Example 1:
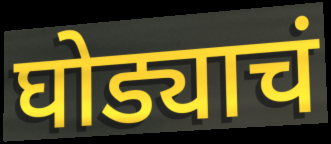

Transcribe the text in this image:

घोड्याचं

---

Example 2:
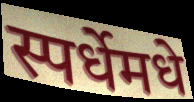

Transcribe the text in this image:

स्पर्धेमधे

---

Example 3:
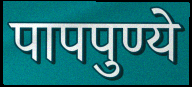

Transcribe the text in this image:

पापपुण्ये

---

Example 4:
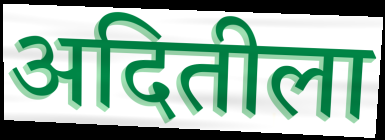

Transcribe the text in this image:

अदितीला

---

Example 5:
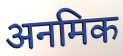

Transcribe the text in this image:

अनमिक